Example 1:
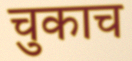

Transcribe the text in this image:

चुकाच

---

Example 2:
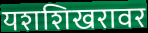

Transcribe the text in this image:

यशशिखरावर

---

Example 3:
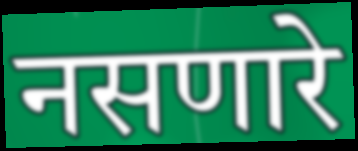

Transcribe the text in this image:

नसणारे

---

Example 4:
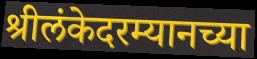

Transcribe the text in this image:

श्रीलंकेदरम्यानच्या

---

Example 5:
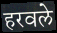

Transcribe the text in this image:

हरवले